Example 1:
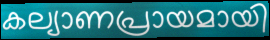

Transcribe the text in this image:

കല്യാണപ്രായമായി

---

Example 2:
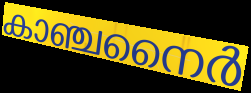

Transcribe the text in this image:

കാഞ്ചനൈർ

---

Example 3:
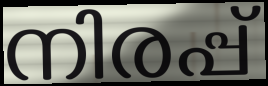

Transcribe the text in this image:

നിരപ്പ്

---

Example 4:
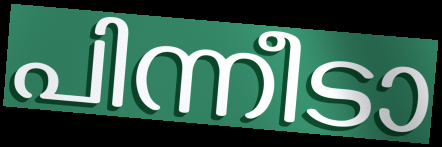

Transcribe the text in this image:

പിന്നീടാ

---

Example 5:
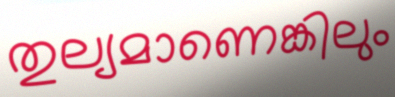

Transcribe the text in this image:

തുല്യമാണെങ്കിലും